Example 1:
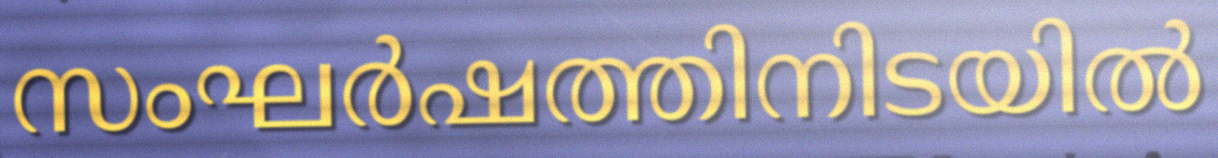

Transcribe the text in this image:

സംഘർഷത്തിനിടയിൽ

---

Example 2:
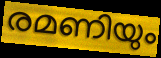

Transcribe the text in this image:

രമണിയും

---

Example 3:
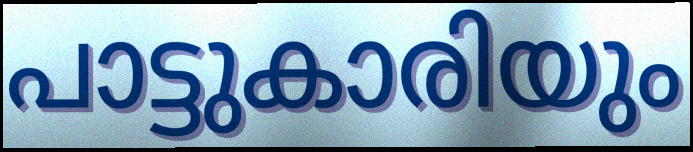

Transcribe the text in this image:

പാട്ടുകാരിയും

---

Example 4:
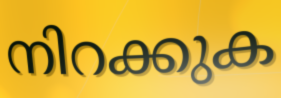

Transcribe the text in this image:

നിറക്കുക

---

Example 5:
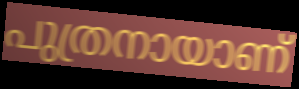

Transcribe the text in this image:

പുത്രനായാണ്